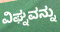
ವಿಘ್ನವನ್ನು